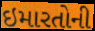
ઇમારતોની